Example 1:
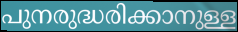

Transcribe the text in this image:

പുനരുദ്ധരിക്കാനുള്ള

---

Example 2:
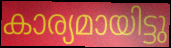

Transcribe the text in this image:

കാര്യമായിട്ടു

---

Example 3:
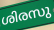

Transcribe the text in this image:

ശിരസു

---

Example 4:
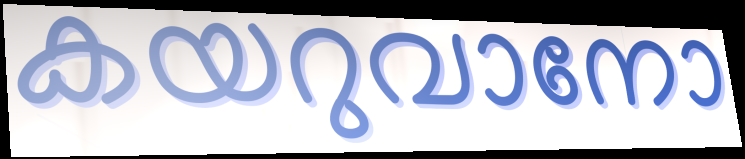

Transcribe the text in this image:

കയറുവാനോ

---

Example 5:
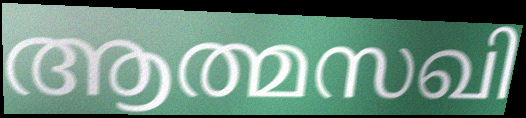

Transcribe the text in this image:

ആത്മസഖി